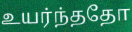
உயர்ந்ததோ